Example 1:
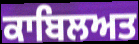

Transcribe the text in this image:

ਕਾਬਿਲਅਤ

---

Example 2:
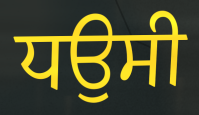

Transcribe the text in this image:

ਧਉਸੀ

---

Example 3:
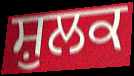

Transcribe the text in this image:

ਸ਼ੁਲਕ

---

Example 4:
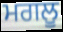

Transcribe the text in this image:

ਮਗਲੂ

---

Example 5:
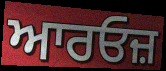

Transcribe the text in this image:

ਆਰਓਜ਼